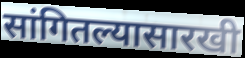
सांगितल्यासारखी